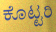
ಕೊಟ್ಟರಿ